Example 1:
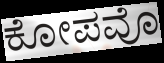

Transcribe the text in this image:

ಕೋಪವೊ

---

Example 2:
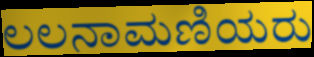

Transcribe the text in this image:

ಲಲನಾಮಣಿಯರು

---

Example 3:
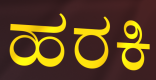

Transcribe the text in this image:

ಹರಕಿ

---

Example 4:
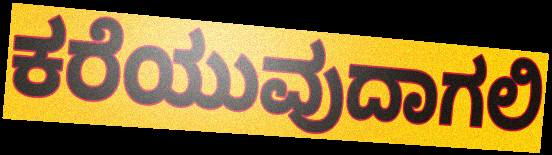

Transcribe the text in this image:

ಕರೆಯುವುದಾಗಲಿ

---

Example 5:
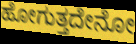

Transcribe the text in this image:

ಹೋಗುತ್ತದೇನೋ